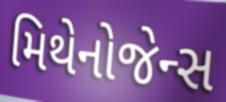
મિથેનોજેન્સ